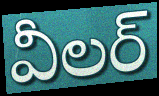
వీలర్